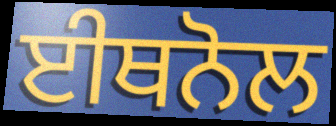
ਈਥਨੋਲ